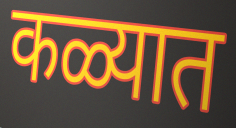
कळ्यात